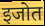
इजोत